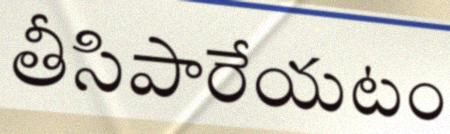
తీసిపారేయటం